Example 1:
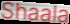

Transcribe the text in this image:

Shaala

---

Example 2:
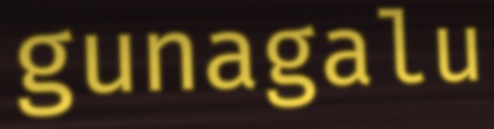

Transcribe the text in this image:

gunagalu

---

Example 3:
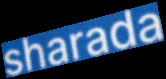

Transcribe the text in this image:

sharada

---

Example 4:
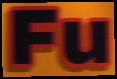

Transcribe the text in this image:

Fu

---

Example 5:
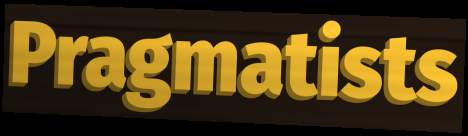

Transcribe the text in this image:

Pragmatists